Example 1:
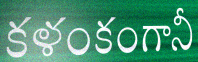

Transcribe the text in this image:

కళంకంగానీ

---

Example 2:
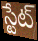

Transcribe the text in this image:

స్టేట్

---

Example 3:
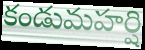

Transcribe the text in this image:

కండుమహర్షి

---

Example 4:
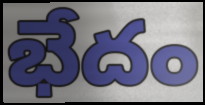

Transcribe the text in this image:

భేదం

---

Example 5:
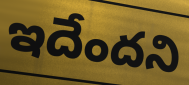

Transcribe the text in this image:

ఇదేందని